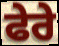
ਫੇਰੇ